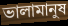
ভালামানুষ